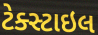
ટેક્સ્ટાઇલ